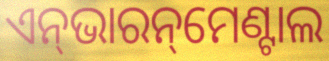
ଏନ୍‌ଭାରନ୍‌ମେଣ୍ଟାଲ